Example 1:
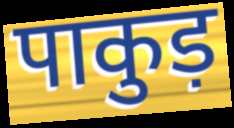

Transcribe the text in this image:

पाकुड़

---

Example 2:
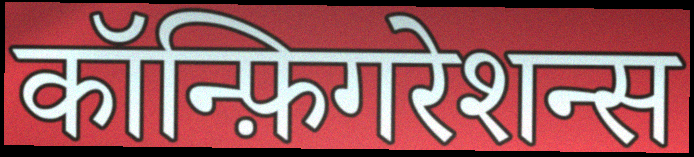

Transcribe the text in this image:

कॉन्फ़िगरेशन्स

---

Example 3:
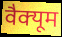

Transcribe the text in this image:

वैक्‍यूम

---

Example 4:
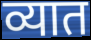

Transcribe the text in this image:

व्यात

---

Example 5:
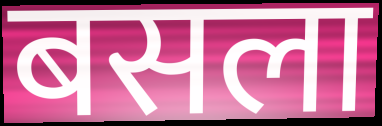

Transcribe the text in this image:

बसला